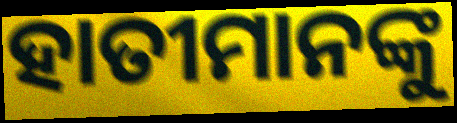
ହାତୀମାନଙ୍କୁ